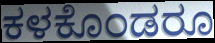
ಕಳಕೊಂಡರೂ